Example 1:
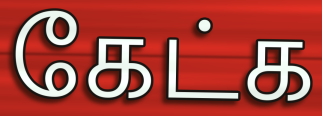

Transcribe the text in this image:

கேட்க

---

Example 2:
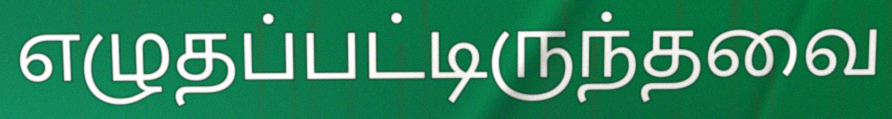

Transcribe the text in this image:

எழுதப்பட்டிருந்தவை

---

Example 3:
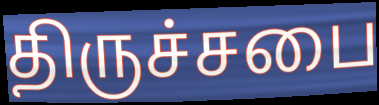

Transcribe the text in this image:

திருச்சபை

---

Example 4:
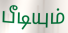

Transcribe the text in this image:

பீடியும்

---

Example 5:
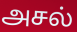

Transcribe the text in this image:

அசல்